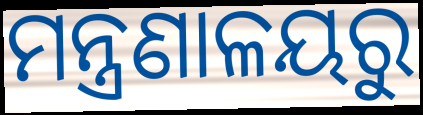
ମନ୍ତ୍ରଣାଳୟରୁ